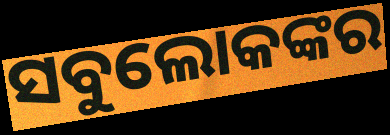
ସବୁଲୋକଙ୍କର